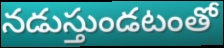
నడుస్తుండటంతో